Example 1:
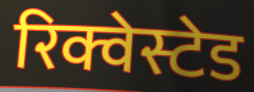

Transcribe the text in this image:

रिक्वेस्टेड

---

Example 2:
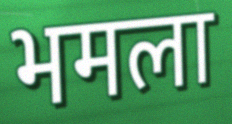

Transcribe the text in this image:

भमला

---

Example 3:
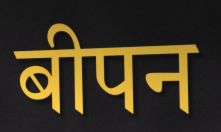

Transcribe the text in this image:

बीपन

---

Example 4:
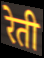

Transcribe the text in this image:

रेती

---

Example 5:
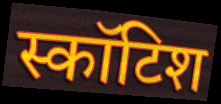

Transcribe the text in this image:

स्कॉटिश